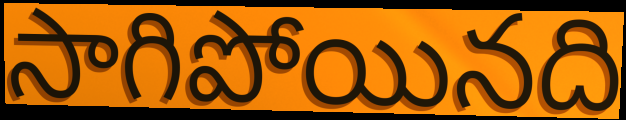
సాగిపోయినది